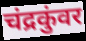
चंद्रकुंवर